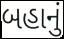
બહાનું